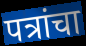
पत्रांचा